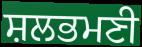
ਸ਼ਲਭਮਣੀ